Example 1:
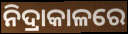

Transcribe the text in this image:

ନିଦ୍ରାକାଳରେ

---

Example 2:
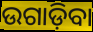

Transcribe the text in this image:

ଉଗାଡ଼ିବା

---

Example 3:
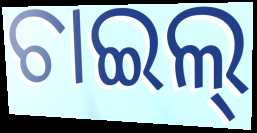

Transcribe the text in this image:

ଚାଇଲ୍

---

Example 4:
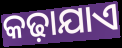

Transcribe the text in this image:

କଢ଼ାଯାଏ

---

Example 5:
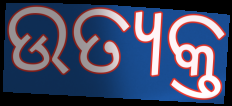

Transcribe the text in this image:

ଉତ୍ୟକ୍ତ